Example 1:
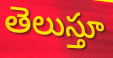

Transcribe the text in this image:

తెలుస్తూ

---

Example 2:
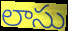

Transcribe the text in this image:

లాసు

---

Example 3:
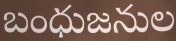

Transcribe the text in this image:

బంధుజనుల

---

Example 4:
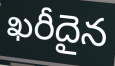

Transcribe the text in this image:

ఖరీదైన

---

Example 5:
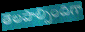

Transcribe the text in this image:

తెలపాల్సిందిగా